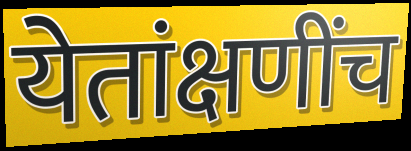
येतांक्षणींच